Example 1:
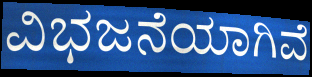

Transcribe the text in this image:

ವಿಭಜನೆಯಾಗಿವೆ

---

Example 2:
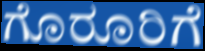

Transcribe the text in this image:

ಗೊರೂರಿಗೆ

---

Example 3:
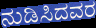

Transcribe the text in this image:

ನುಡಿಸಿದವರ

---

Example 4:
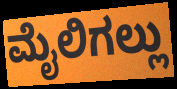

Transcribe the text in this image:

ಮೈಲಿಗಲ್ಲು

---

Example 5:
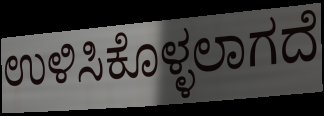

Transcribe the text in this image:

ಉಳಿಸಿಕೊಳ್ಳಲಾಗದೆ